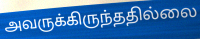
அவருக்கிருந்ததில்லை